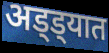
अड्ड्यात